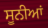
ਸੂਨੀਆਂ